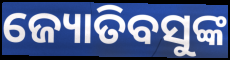
ଜ୍ୟୋତିବସୁଙ୍କ